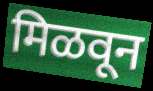
मिळवून